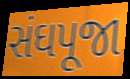
સંઘપૂજા